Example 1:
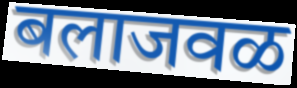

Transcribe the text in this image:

बलाजवळ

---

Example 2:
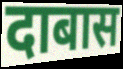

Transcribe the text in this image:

दाबास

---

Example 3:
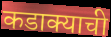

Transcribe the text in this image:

कडाक्याची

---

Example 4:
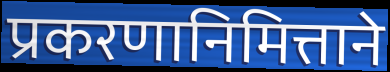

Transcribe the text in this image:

प्रकरणानिमित्ताने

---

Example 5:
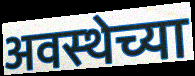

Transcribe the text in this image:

अवस्थेच्या